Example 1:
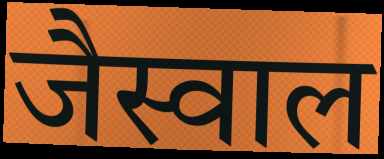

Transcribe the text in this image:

जैस्वाल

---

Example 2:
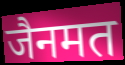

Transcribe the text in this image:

जैनमत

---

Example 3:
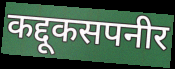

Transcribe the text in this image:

कद्दूकसपनीर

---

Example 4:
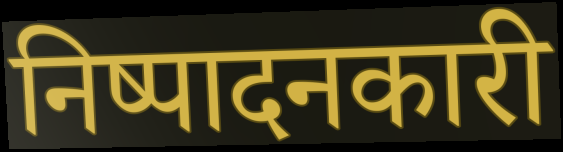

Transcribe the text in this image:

निष्पादनकारी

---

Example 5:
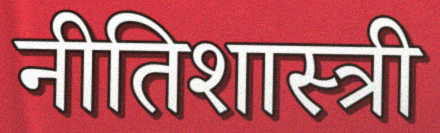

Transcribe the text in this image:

नीतिशास्त्री